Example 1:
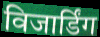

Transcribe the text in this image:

विजार्डिंग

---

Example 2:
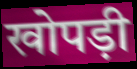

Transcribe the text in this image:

खोपड़ी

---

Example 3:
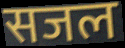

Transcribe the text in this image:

सजल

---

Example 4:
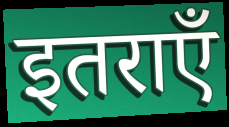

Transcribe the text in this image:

इतराएँ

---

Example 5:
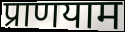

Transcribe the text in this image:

प्राणयाम